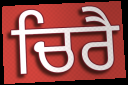
ਚਿਰੈ